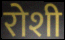
रोशी